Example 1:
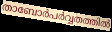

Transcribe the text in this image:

താബോർപർവ്വതത്തിൽ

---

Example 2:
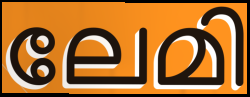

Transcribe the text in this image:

ലേമി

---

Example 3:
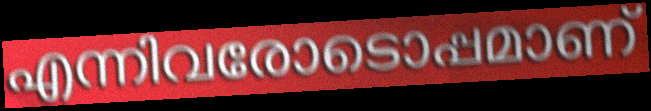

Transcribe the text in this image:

എന്നിവരോടൊപ്പമാണ്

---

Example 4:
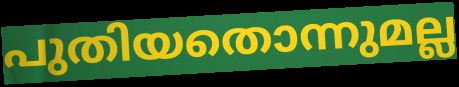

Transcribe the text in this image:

പുതിയതൊന്നുമല്ല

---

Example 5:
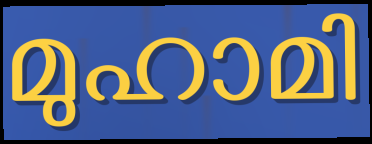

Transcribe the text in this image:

മുഹാമി